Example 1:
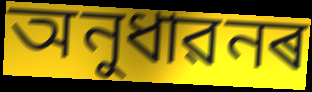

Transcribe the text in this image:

অনুধাৱনৰ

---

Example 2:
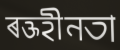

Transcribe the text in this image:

ৰক্তহীনতা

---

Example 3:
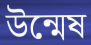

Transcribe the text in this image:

উন্মেষ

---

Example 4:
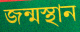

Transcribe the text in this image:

জন্মস্থান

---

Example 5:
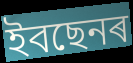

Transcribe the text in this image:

ইবছেনৰ